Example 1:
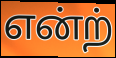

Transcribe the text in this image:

என்ற்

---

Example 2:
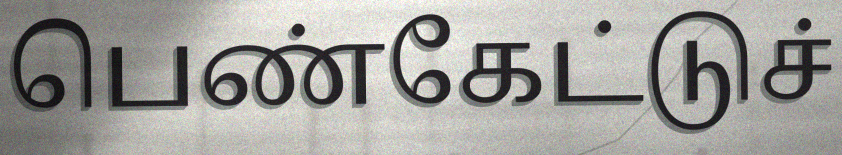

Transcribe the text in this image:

பெண்கேட்டுச்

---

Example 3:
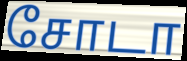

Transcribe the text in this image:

சோடா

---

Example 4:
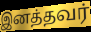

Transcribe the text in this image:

இனத்தவர்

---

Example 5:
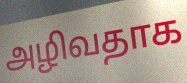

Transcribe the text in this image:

அழிவதாக